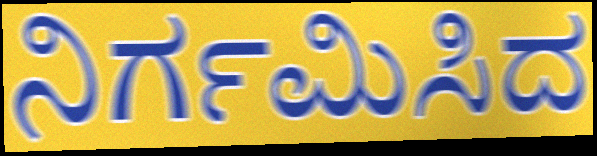
ನಿರ್ಗಮಿಸಿದ